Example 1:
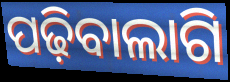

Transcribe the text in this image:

ପଢ଼ିବାଲାଗି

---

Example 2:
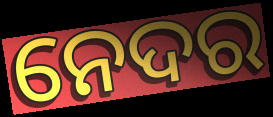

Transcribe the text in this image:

ନେଦର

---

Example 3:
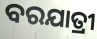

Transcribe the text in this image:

ବରଯାତ୍ରୀ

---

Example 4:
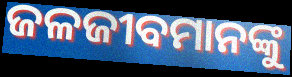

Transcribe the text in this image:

ଜଳଜୀବମାନଙ୍କୁ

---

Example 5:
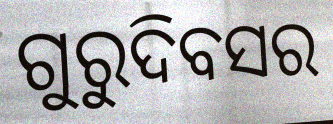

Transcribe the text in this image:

ଗୁରୁଦିବସର